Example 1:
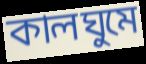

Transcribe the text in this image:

কালঘুমে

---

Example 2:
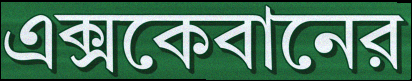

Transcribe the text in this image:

এক্সকেবানের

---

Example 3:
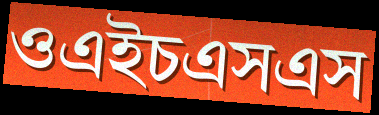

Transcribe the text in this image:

ওএইচএসএস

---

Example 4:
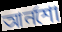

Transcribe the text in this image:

আর্নশো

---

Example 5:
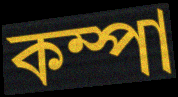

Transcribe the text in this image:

কম্পা